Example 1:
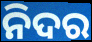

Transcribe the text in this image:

ନିଦର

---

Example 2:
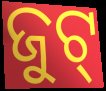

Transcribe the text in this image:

ଜୁଟ୍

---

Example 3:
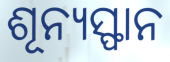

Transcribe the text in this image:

ଶୂନ୍ୟସ୍ଫାନ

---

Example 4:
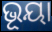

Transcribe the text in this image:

ଭୂୟା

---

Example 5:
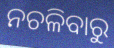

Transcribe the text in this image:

ନଚଳିବାରୁ